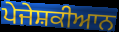
ਪੇਜੇਸ਼ਕੀਆਨ